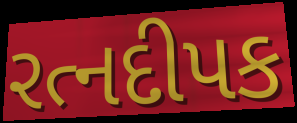
રત્નદીપક